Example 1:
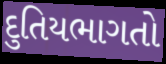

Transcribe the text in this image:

દુતિયભાગતો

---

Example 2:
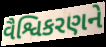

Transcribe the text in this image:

વૈશ્વિકરણને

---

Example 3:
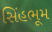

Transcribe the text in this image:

સિંહભૂમ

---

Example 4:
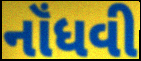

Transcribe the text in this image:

નૉંધવી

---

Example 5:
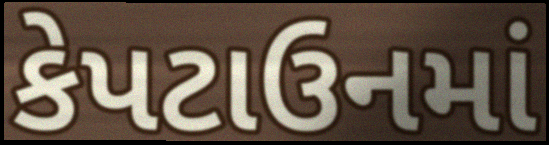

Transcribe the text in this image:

કેપટાઉનમાં